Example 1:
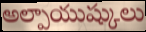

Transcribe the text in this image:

అల్పాయుష్కులు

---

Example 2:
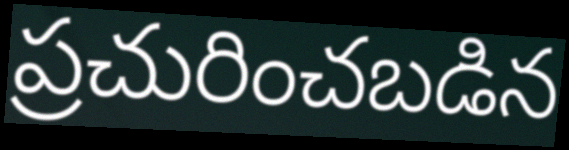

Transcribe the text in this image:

ప్రచురించబడిన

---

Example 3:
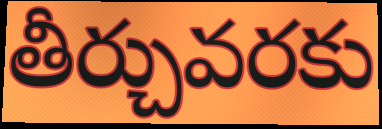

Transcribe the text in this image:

తీర్చువరకు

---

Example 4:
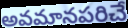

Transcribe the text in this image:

అవమానపరిచే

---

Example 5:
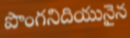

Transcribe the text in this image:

పొంగనిదియునైన